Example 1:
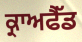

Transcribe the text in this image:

ਕ੍ਰਾਅਫੈੱਡ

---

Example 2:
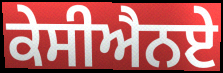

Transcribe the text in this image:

ਕੇਸੀਐਨਏ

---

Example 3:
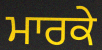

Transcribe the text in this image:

ਮਾਰਕੇ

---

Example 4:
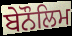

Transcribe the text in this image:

ਬੇਨੌਲਿਮ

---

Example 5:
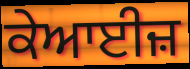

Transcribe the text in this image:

ਕੇਆਈਜ਼